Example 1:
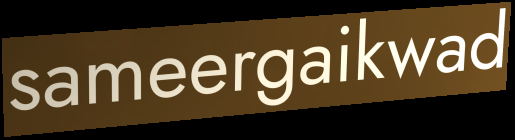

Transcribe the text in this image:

sameergaikwad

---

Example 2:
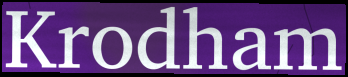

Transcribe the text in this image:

Krodham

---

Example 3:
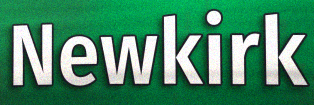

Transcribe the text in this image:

Newkirk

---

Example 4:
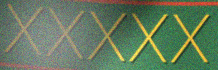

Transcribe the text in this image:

XXXXX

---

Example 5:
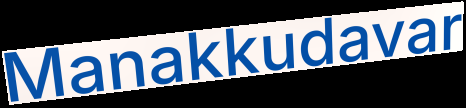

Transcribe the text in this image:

Manakkudavar